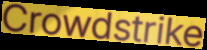
Crowdstrike